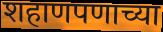
शहाणपणाच्या